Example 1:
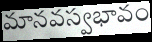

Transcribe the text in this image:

మానవస్వభావం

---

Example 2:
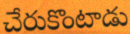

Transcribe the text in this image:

చేరుకొంటాడు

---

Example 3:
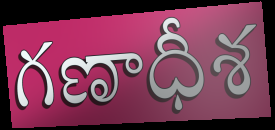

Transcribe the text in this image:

గణాధీశ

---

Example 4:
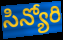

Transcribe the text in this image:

సిన్యోరి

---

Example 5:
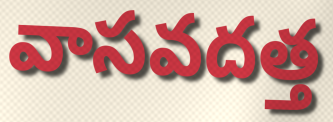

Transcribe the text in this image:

వాసవదత్త